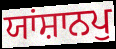
ਯਾਂਸ਼ਾਨਪੁ